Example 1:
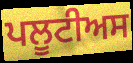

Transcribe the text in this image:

ਪਲੂਟੀਅਸ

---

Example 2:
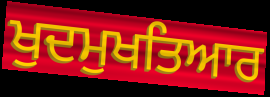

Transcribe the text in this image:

ਖੁਦਮੁਖਤਿਆਰ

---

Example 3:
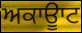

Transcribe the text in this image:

ਅਕਾਊਾਟ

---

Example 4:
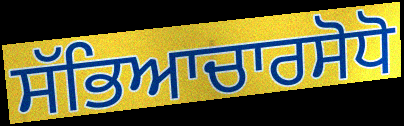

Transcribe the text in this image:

ਸੱਭਿਆਚਾਰਸੋਧੋ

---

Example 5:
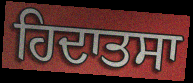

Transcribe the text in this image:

ਹਿਦਾਤਸਾ